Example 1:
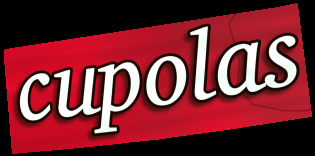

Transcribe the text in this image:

cupolas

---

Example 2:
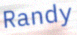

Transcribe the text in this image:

Randy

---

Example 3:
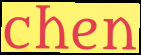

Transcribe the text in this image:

chen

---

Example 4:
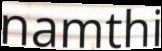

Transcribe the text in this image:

namthi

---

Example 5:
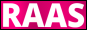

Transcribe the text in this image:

RAAS